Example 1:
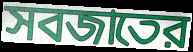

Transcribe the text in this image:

সবজাতের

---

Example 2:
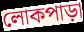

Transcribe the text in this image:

লোকপাড়া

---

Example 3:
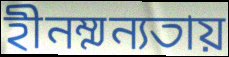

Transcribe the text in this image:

হীনম্মন্যতায়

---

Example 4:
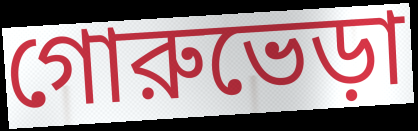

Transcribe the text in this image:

গোরুভেড়া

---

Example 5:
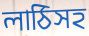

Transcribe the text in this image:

লাঠিসহ